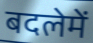
बदलेमें